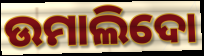
ଉମାଲିଦୋ